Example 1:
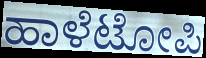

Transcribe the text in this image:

ಹಾಳೆಟೋಪಿ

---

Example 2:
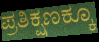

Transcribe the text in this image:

ಪ್ರತಿಕ್ಷಣಕ್ಕೂ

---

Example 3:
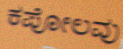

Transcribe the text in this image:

ಕಪೋಲವು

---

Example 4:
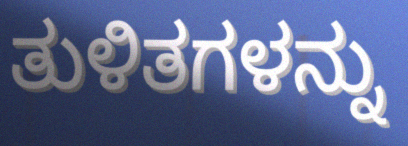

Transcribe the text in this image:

ತುಳಿತಗಳನ್ನು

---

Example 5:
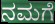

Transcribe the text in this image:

ನಮಗೆ